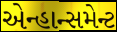
એન્હાન્સમેન્ટ